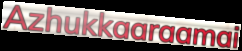
Azhukkaaraamai